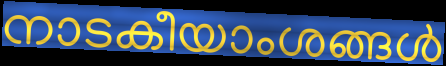
നാടകീയാംശങ്ങൾ